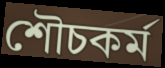
শৌচকর্ম